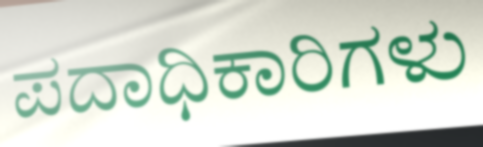
ಪದಾಧಿಕಾರಿಗಳು